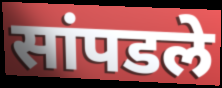
सांपडले